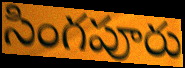
సింగపూరు